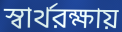
স্বার্থরক্ষায়